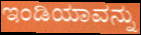
ಇಂಡಿಯಾವನ್ನು